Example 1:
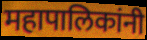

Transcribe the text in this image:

महापालिकांनी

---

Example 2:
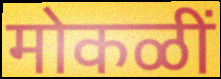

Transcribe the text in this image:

मोकळीं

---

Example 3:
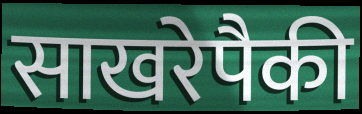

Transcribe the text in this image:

साखरेपैकी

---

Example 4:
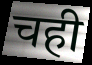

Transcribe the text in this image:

चही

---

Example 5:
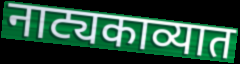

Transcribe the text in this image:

नाट्यकाव्यात